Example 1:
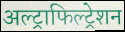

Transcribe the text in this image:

अल्ट्राफिल्ट्रेशन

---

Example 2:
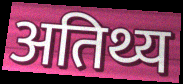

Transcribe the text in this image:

अतिथ्य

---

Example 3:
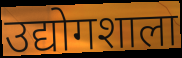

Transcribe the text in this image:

उद्योगशाला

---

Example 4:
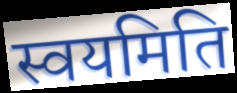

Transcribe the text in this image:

स्वयमिति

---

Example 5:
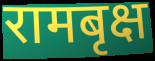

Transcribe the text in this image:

रामबृक्ष